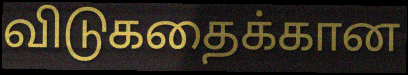
விடுகதைக்கான